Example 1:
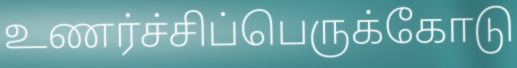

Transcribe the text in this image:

உணர்ச்சிப்பெருக்கோடு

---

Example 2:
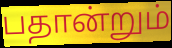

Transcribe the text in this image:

பதான்றும்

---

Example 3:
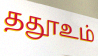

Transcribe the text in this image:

ததூஉம்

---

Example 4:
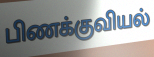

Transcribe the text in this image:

பிணக்குவியல்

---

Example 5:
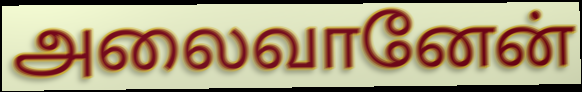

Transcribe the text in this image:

அலைவானேன்